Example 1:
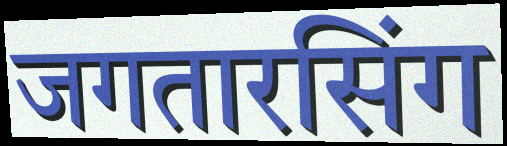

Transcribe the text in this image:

जगतारसिंग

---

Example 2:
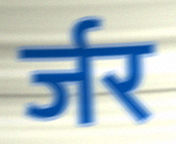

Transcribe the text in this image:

र्जर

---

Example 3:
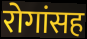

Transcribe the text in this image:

रोगांसह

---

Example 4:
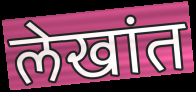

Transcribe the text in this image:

लेखांत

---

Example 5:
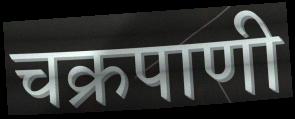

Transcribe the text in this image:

चक्रपाणी